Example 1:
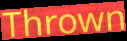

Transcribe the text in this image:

Thrown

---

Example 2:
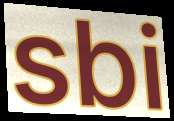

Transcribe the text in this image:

sbi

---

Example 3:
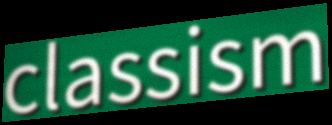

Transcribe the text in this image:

classism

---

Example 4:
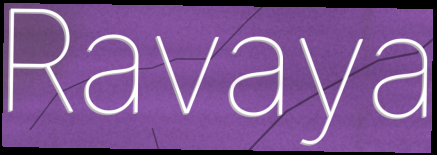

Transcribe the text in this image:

Ravaya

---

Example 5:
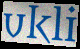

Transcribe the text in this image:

ukli